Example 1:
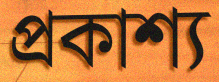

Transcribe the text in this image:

প্ৰকাশ্য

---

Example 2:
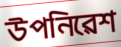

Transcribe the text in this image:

উপনিৱেশ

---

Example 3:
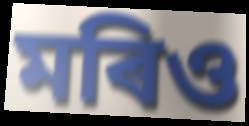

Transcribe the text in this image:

মৰিও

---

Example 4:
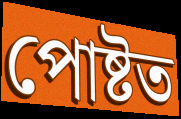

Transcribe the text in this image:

পোষ্টত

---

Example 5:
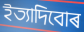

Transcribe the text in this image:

ইত্যাদিবোৰ